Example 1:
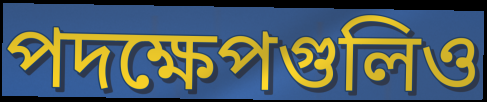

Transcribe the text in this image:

পদক্ষেপগুলিও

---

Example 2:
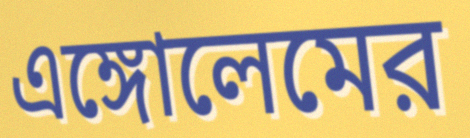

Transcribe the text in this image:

এঙ্গোলেমের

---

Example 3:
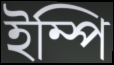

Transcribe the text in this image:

ইম্পি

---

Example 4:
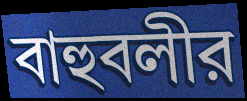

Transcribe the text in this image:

বাহুবলীর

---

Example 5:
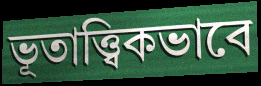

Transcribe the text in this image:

ভূতাত্ত্বিকভাবে